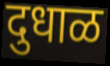
दुधाळ